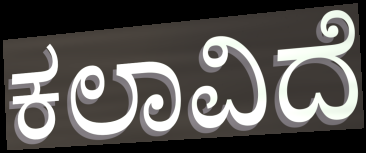
ಕಲಾವಿದೆ